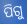
ପିଗୁ